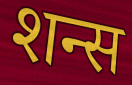
शन्स